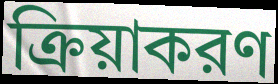
ক্রিয়াকরণ